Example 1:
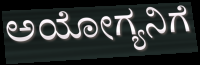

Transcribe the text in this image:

ಅಯೋಗ್ಯನಿಗೆ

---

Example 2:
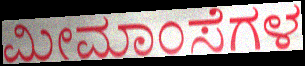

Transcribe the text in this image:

ಮೀಮಾಂಸೆಗಳ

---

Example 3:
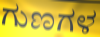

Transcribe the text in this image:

ಗುಣಗಳ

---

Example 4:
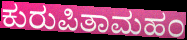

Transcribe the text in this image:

ಕುರುಪಿತಾಮಹಂ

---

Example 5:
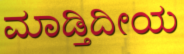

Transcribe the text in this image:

ಮಾಡ್ತಿದೀಯ